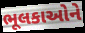
ભૂલકાઓને